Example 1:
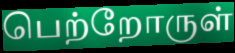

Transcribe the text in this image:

பெற்றோருள்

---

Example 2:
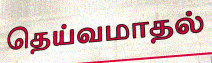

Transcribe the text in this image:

தெய்வமாதல்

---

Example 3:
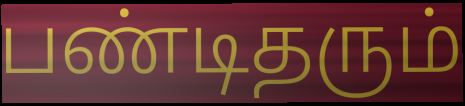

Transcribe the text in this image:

பண்டிதரும்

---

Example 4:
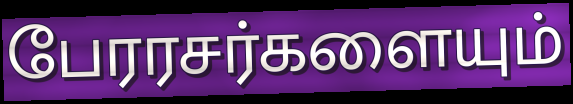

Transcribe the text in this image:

பேரரசர்களையும்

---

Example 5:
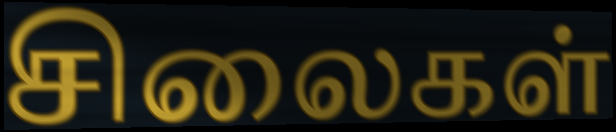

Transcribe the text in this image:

சிலைகள்